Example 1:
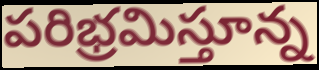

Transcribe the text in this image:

పరిభ్రమిస్తూన్న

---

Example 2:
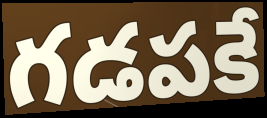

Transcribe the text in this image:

గడపకే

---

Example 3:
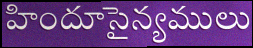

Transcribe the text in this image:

హిందూసైన్యములు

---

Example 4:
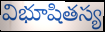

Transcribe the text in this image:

విభూషితస్య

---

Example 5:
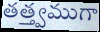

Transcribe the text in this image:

తత్త్వముగా